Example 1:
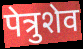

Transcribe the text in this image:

पेत्रुशेव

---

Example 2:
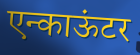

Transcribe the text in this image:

एन्काऊंटर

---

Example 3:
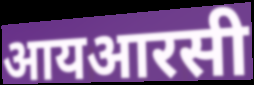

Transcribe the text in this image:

आयआरसी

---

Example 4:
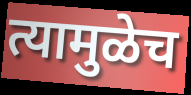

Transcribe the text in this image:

त्यामुळेच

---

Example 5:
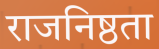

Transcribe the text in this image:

राजनिष्ठता